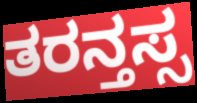
ತರನ್ತಸ್ಸ